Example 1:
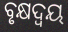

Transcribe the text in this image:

ବୃକ୍ଷଦ୍ୱୟ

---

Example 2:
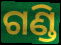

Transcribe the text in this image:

ଗଣ୍ଡି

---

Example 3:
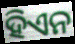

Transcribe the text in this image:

ହିଏନ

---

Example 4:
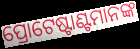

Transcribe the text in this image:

ପ୍ରୋଟେଷ୍ଟାଣ୍ଟମାନଙ୍କ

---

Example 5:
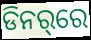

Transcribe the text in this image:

ଡିନର୍‌ରେ